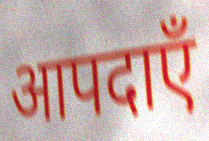
आपदाएँ